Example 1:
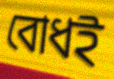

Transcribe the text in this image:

বোধই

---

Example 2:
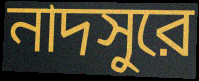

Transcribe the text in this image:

নাদসুরে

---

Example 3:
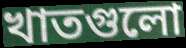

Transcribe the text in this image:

খাতগুলো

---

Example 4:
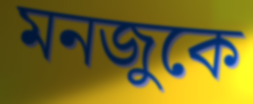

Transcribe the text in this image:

মনজুকে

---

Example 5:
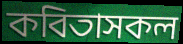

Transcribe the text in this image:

কবিতাসকল